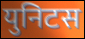
युनिटस